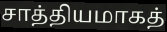
சாத்தியமாகத்